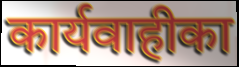
कार्यवाहीका